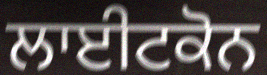
ਲਾਈਟਕੋਨ